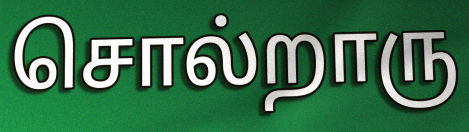
சொல்றாரு